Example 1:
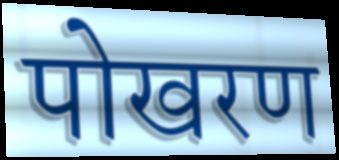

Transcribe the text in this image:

पोखरण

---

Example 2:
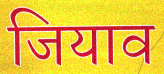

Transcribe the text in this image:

जियाव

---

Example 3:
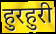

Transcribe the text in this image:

हुरहुरी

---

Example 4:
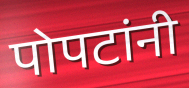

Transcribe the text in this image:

पोपटांनी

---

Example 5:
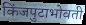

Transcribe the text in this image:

किंजपुटाभोवती